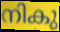
നികു